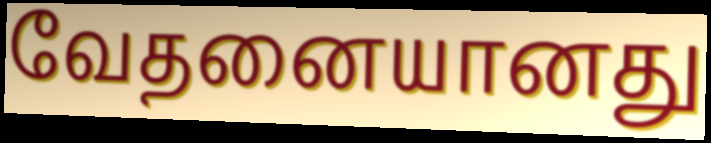
வேதனையானது